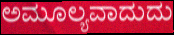
ಅಮೂಲ್ಯವಾದುದು